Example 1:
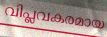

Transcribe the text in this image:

വിപ്ലവകരമായ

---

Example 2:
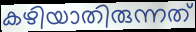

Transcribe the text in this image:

കഴിയാതിരുന്നത്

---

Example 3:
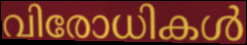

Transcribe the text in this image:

വിരോധികൾ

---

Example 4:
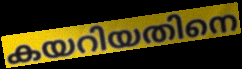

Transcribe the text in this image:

കയറിയതിനെ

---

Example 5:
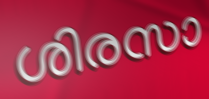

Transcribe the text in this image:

ശിരസാ